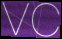
VC